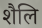
शैलि